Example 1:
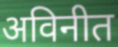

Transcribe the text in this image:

अविनीत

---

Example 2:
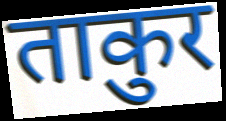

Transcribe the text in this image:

ताकुर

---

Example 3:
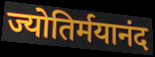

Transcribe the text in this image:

ज्योतिर्मयानंद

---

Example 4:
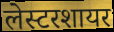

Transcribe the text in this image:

लेस्टरशायर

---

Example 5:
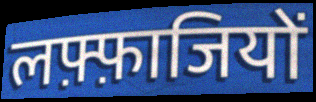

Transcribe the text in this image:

लफ़्फ़ाजियों